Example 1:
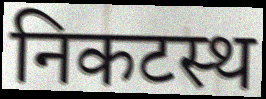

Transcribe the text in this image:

निकटस्थ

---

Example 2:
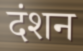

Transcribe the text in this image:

दंशन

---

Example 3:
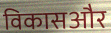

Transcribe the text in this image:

विकासऔर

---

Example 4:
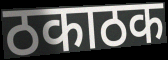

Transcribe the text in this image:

ठकाठक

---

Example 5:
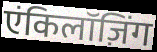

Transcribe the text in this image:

एंकिलॉज़िंग